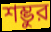
শম্ভুর